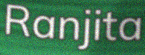
Ranjita